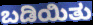
ಬಡಿಯಿತು